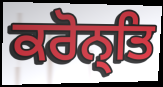
ਕਰੋਨ੍ਤਿ